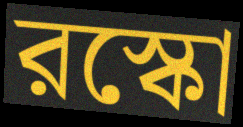
রস্কো